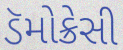
ડૅમોક્રેસી